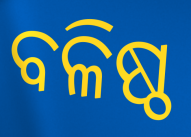
ବଳିଷ୍ଠ